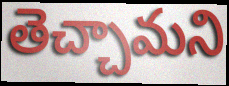
తెచ్చామని